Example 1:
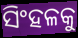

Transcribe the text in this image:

ସିଂହଳକୁ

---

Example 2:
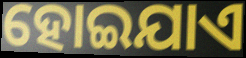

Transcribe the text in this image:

ହୋଇଯାଏ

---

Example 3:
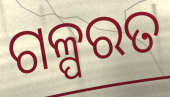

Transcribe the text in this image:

ଗଳ୍ପରତ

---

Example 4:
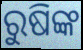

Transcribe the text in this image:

ରୁଷିଙ୍କ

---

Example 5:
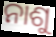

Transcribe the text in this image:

ନାଶୁ